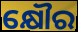
କ୍ଷୌର